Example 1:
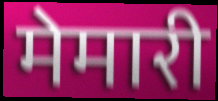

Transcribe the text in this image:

मेमारी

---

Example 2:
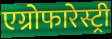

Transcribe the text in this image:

एग्रोफारेस्ट्री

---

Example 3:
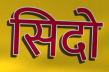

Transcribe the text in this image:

सिदो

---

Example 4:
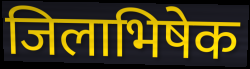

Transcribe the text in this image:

जिलाभिषेक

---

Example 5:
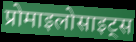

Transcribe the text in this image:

प्रोमाइलोसाइट्स